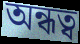
অন্ধত্ব